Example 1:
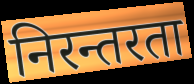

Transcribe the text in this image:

निरन्तरता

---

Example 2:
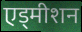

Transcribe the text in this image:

एड्मीशन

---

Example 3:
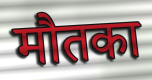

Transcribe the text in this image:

मौतका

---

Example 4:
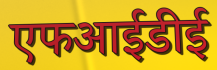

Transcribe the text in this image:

एफआईडीई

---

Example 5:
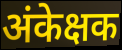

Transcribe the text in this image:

अंकेक्षक